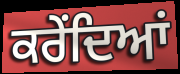
ਕਰੇਂਦਿਆਂ